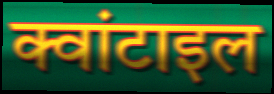
क्वांटाइल